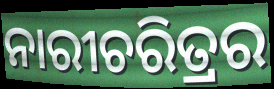
ନାରୀଚରିତ୍ରର